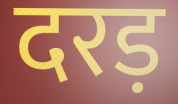
दरड़